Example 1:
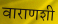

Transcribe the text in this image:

वाराणशी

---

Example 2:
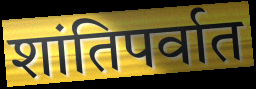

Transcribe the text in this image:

शांतिपर्वात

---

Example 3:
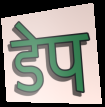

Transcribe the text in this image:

डेप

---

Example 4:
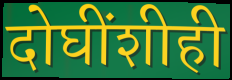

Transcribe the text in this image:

दोघींशीही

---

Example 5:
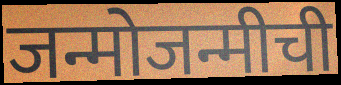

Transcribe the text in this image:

जन्मोजन्मीची